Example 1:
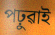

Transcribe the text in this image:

পঢ়ুৱাই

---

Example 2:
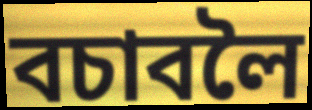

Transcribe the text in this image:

বচাবলৈ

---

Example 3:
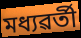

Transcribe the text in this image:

মধ্যৱৰ্তী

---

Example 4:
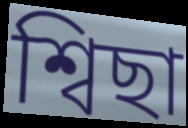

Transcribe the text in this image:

শ্বিছা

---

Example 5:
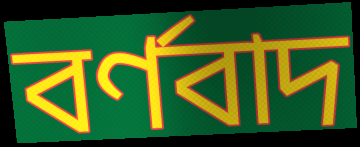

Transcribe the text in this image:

বৰ্ণবাদ